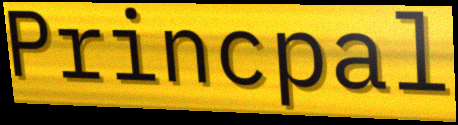
Princpal